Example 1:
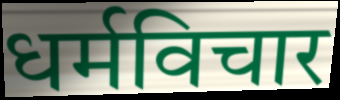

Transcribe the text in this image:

धर्मविचार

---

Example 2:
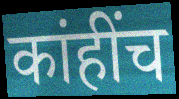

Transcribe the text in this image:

कांहींच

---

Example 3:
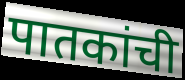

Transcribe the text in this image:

पातकांची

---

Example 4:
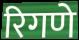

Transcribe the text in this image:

रिगणे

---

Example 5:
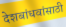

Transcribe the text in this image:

देशबांधवांसाठी